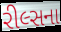
રીલ્સના